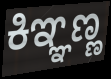
ಕಿಞ್ಞಣ್ಣ